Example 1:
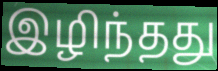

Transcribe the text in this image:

இழிந்தது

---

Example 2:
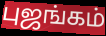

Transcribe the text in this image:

புஜங்கம்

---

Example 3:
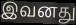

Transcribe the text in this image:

இவனது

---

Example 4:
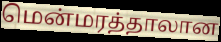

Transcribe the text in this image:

மென்மரத்தாலான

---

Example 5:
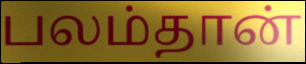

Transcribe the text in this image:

பலம்தான்